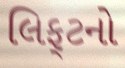
લિફ્‌ટનો